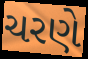
ચરણે